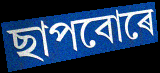
ছাপবোৰে